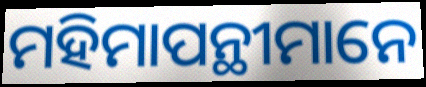
ମହିମାପନ୍ଥୀମାନେ